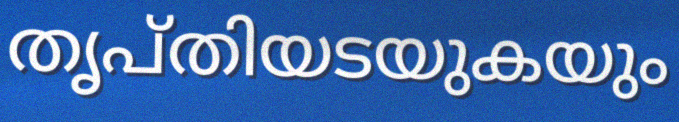
തൃപ്തിയടയുകയും